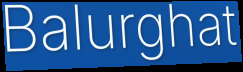
Balurghat